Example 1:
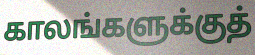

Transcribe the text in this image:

காலங்களுக்குத்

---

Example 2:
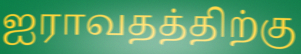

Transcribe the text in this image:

ஐராவதத்திற்கு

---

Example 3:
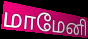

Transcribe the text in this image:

மாமேனி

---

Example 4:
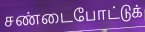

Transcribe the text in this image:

சண்டைபோட்டுக்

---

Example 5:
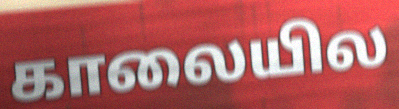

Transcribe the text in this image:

காலையில